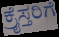
ಕ್ರೈಸ್ತರಿಗೆ